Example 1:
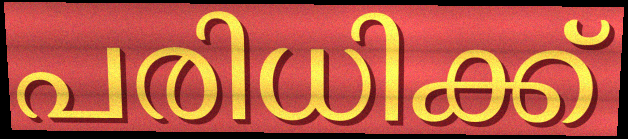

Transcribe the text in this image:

പരിധിക്ക്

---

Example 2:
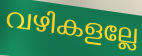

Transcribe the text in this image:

വഴികളല്ലേ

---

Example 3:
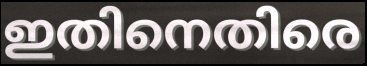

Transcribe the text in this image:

ഇതിനെതിരെ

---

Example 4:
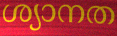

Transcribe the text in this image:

ശ്യാനത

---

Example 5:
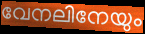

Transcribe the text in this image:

വേനലിനേയും